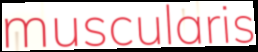
muscularis